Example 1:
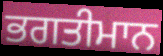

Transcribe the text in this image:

ਭਗਤੀਮਾਨ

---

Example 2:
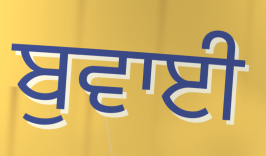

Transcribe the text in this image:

ਬੁਵਾਈ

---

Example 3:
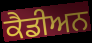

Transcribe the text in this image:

ਕੈਡੀਅਨ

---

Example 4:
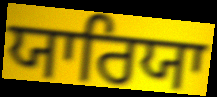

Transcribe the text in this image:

ਯਾਰਿਯਾ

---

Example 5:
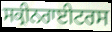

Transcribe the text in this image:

ਸਕ੍ਰੀਨਰਾਈਟਰਸ